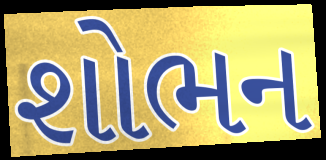
શોભન